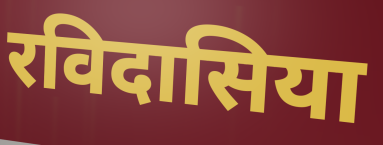
रविदासिया